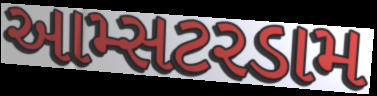
આમ્સટરડામ